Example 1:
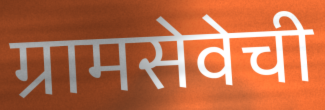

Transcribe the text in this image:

ग्रामसेवेची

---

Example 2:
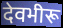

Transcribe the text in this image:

देवभीरू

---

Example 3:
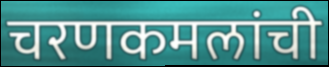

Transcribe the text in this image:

चरणकमलांची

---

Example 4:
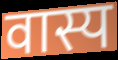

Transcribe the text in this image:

वास्य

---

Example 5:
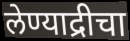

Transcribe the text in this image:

लेण्याद्रीचा